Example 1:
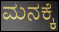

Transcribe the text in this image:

ಮನಕ್ಕೆ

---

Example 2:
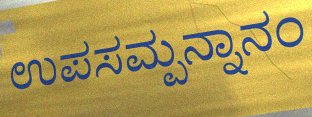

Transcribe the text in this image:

ಉಪಸಮ್ಪನ್ನಾನಂ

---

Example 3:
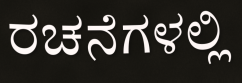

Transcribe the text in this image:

ರಚನೆಗಳಲ್ಲಿ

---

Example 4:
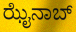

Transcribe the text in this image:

ಝೈನಾಬ್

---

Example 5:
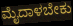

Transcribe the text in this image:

ಮೈದಾಳಬೇಕು